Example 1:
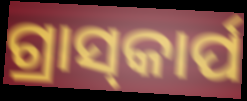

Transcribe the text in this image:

ଗ୍ରାସ୍‌କାର୍ପ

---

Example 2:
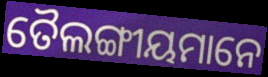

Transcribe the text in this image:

ତୈଲଙ୍ଗୀୟମାନେ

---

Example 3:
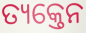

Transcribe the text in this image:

ତ୍ୟକ୍ତେନ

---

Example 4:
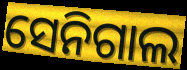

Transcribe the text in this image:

ସେନିଗାଲ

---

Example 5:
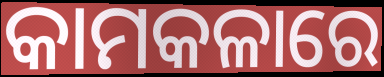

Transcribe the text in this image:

କାମକଳାରେ